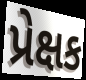
પ્રેક્ષક